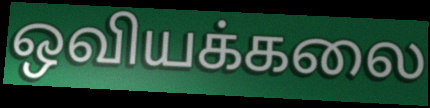
ஒவியக்கலை